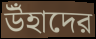
উঁহাদের